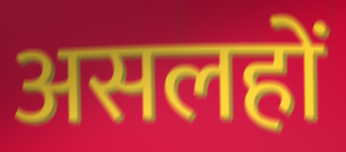
असलहों